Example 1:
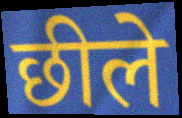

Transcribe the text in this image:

छीले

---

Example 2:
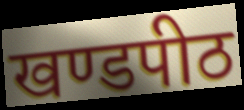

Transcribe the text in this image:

खण्डपीठ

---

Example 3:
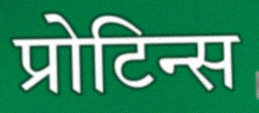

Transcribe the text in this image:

प्रोटिन्स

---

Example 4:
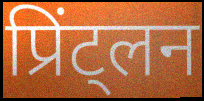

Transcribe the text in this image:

प्रिंट्लन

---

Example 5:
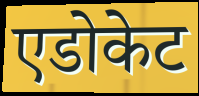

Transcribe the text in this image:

एडोकेट